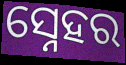
ସ୍ନେହର